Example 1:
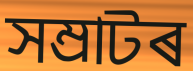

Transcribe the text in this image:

সম্ৰাটৰ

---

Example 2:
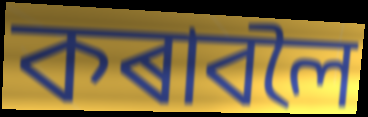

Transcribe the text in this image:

কৰাবলৈ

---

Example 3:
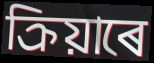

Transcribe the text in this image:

ক্ৰিয়াৰে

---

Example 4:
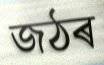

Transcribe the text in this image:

জঠৰ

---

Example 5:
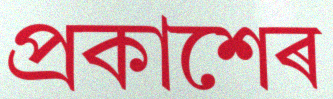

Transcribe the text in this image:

প্ৰকাশেৰ